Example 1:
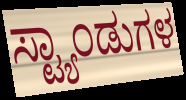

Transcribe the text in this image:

ಸ್ಟ್ಯಾಂಡುಗಳ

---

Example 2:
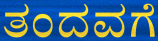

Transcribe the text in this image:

ತಂದವಗೆ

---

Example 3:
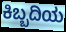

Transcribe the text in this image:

ಕಿಬ್ಬದಿಯ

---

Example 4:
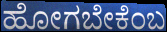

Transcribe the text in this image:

ಹೋಗಬೇಕೆಂಬ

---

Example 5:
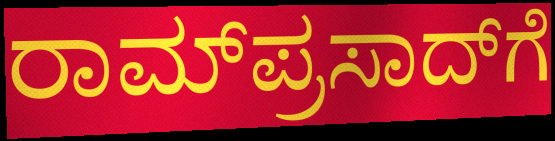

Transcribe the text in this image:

ರಾಮ್‌ಪ್ರಸಾದ್‌ಗೆ